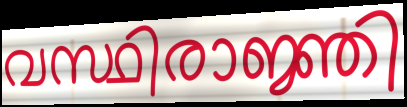
വസ്ഥിരാജ്ഞി